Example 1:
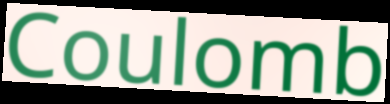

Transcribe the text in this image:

Coulomb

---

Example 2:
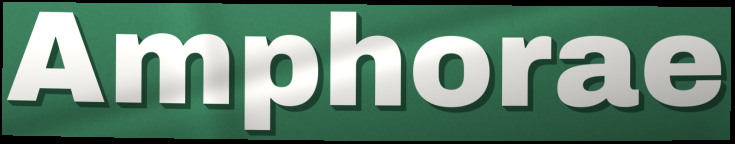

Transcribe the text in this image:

Amphorae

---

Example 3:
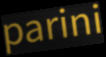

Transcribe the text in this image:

parini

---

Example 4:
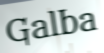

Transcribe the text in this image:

Galba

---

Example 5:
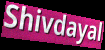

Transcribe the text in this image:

Shivdayal